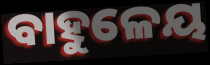
ବାହୁଳେୟ